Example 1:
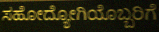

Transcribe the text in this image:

ಸಹೋದ್ಯೋಗಿಯೊಬ್ಬರಿಗೆ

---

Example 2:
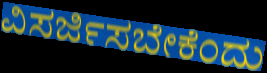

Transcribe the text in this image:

ವಿಸರ್ಜಿಸಬೇಕೆಂದು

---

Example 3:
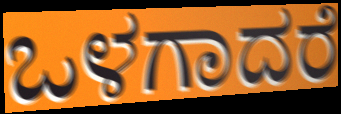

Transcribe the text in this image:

ಒಳಗಾದರೆ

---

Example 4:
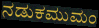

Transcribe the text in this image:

ನಡುಕಮುಮಂ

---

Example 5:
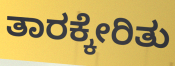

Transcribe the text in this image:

ತಾರಕ್ಕೇರಿತು